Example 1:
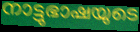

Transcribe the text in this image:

നാട്ടുഭാഷയുടെ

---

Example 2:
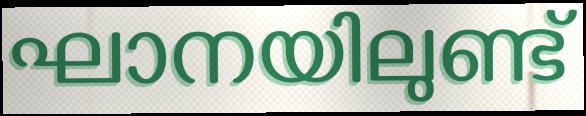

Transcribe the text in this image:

ഘാനയിലുണ്ട്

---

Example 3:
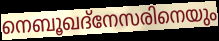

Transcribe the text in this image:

നെബൂഖദ്നേസരിനെയും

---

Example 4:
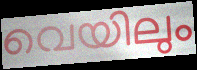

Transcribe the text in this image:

വെയിലും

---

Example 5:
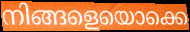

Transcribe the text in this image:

നിങ്ങളെയൊക്കെ